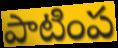
పాటింప